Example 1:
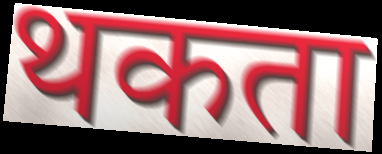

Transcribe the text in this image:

थकता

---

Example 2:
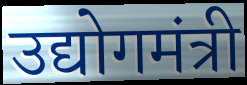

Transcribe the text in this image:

उद्योगमंत्री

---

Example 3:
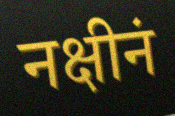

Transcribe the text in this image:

नक्षीनं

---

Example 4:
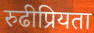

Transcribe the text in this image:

रुढीप्रियता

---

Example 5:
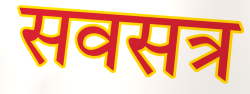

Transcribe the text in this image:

सवसत्र